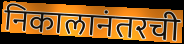
निकालानंतरची